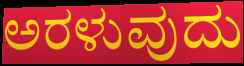
ಅರಳುವುದು